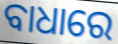
ବାଧାରେ